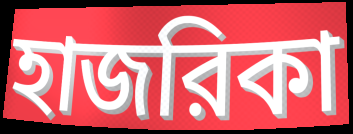
হাজরিকা